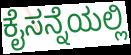
ಕೈಸನ್ನೆಯಲ್ಲಿ